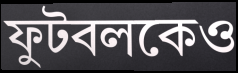
ফুটবলকেও